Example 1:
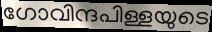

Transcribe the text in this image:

ഗോവിന്ദപിള്ളയുടെ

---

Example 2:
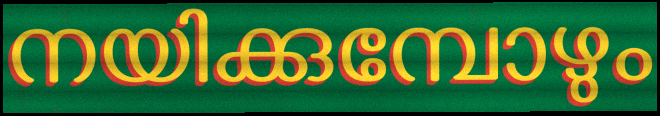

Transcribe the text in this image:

നയിക്കുമ്പോഴും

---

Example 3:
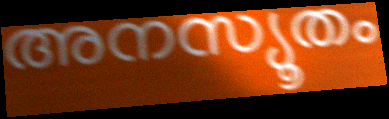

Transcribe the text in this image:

അനസ്യൂതം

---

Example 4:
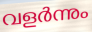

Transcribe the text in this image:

വളർന്നും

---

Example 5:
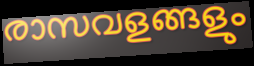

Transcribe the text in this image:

രാസവളങ്ങളും